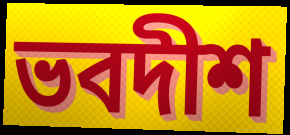
ভবদীশ